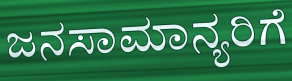
ಜನಸಾಮಾನ್ಯರಿಗೆ